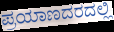
ಪ್ರಯಾಣದರದಲ್ಲಿ